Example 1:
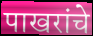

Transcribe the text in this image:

पाखरांचे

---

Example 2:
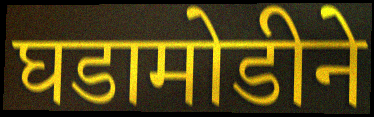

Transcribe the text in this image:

घडामोडीने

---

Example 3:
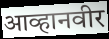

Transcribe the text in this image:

आव्हानवीर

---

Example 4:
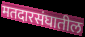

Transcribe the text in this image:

मतदारसंघातील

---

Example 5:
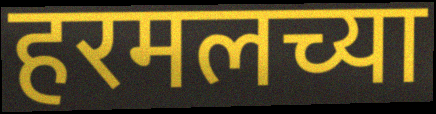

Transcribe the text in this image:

हरमलच्या